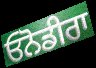
ਓਨੋਡੀਰਾ